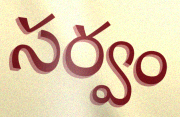
సర్వం